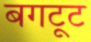
बगटूट